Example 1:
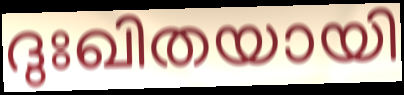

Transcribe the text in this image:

ദുഃഖിതയായി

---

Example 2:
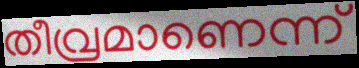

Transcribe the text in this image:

തീവ്രമാണെന്ന്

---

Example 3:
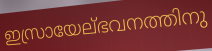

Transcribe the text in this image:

ഇസ്രായേല്ഭവനത്തിനു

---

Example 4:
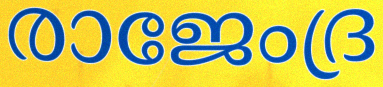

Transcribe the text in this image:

രാജേംദ്ര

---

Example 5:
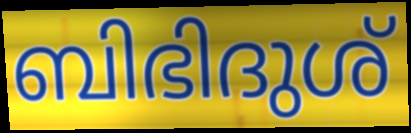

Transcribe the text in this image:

ബിഭിദുശ്